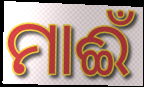
ମାଈଁ